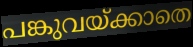
പങ്കുവയ്ക്കാതെ